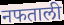
नफताली